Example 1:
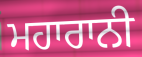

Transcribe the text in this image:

ਮਹਾਰਾਨੀ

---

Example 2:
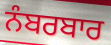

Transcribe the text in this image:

ਨੰਬਰਬਾਰ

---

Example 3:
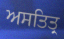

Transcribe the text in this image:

ਅਸਤਿਤ੍ਰ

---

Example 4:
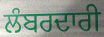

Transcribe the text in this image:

ਲੰਬਰਦਾਰੀ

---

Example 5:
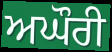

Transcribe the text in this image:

ਅਘੌਰੀ